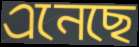
এনেছে